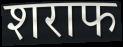
शराफ